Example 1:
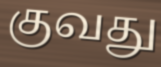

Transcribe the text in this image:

குவது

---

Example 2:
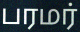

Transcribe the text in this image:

பரமர்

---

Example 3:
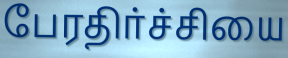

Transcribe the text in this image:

பேரதிர்ச்சியை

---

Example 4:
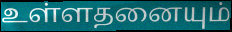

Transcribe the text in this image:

உள்ளதனையும்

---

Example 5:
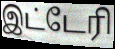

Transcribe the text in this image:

இட்டேரி